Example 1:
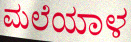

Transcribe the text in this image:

ಮಲೆಯಾಳ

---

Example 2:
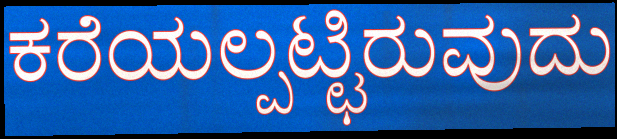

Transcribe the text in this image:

ಕರೆಯಲ್ಪಟ್ಟಿರುವುದು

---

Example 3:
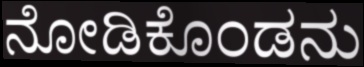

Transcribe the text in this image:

ನೋಡಿಕೊಂಡನು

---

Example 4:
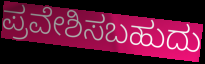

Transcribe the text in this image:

ಪ್ರವೇಶಿಸಬಹುದು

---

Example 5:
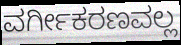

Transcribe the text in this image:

ವರ್ಗೀಕರಣವಲ್ಲ